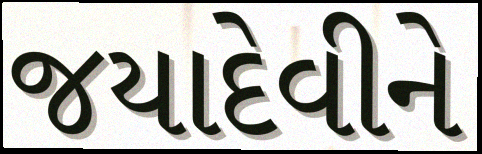
જયાદેવીને